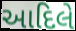
આદિલે